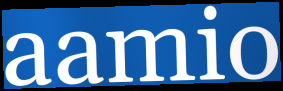
aamio